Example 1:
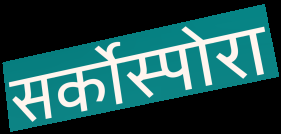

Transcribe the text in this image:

सर्कोस्पोरा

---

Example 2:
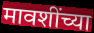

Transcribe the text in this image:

मावशींच्या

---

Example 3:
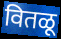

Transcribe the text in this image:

वितळू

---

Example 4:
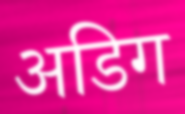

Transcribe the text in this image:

अडिग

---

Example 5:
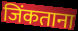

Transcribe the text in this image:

जिंकताना